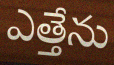
ఎత్తేను